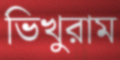
ভিখুরাম